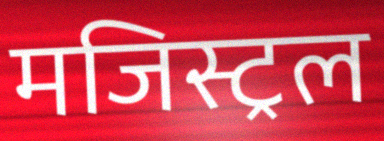
मजिस्ट्रल